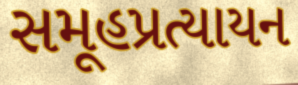
સમૂહપ્રત્યાયન